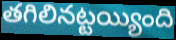
తగిలినట్టయ్యింది